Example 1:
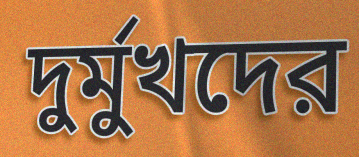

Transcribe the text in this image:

দুর্মুখদের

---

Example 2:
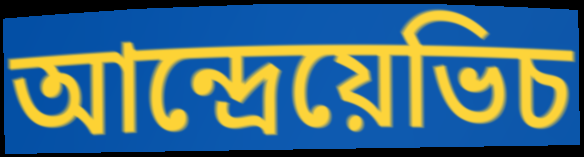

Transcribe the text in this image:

আন্দ্রেয়েভিচ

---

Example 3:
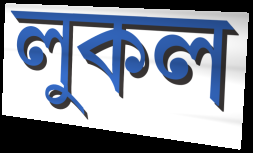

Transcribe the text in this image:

লুকল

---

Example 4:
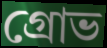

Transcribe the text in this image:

গ্রোভ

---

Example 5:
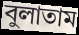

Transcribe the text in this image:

বুলাতাম